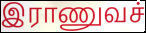
இராணுவச்